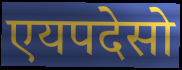
एयपदेसो